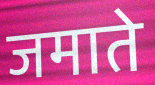
जमाते